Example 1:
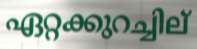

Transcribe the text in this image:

ഏറ്റക്കുറച്ചില്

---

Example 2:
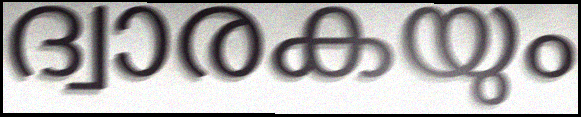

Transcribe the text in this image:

ദ്വാരകയും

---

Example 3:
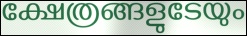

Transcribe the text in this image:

ക്ഷേത്രങ്ങളുടേയും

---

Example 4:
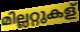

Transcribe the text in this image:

മില്ലറ്റുകള്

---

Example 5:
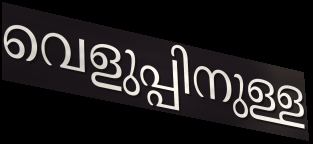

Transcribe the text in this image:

വെളുപ്പിനുള്ള